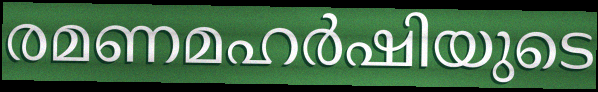
രമണമഹർഷിയുടെ